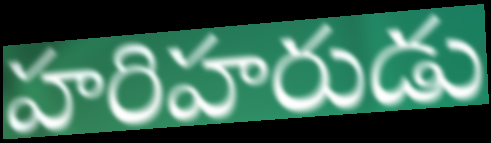
హరిహరుడు